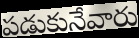
పడుకునేవారు